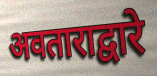
अवताराद्वारे